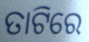
ତାଟିରେ